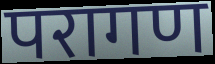
परागण